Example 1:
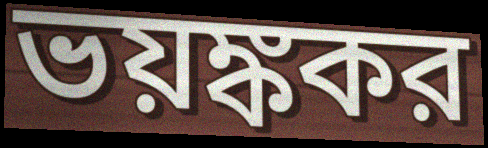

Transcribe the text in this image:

ভয়ঙ্ককর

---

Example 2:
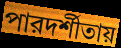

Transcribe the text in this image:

পারদর্শীতায়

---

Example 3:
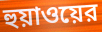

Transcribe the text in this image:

হুয়াওয়ের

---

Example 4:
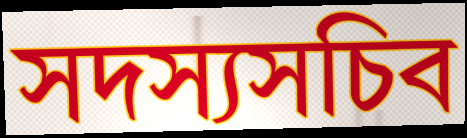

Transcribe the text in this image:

সদস্যসচিব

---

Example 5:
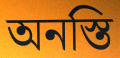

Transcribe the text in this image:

অনস্তি